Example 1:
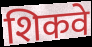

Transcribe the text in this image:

शिकवे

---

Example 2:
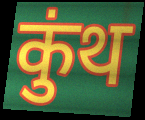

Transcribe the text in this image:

कुंथ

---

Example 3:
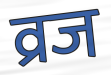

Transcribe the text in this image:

व्रज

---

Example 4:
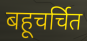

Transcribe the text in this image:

बहूचर्चित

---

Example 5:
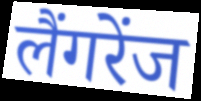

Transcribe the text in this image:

लैंगरेंज